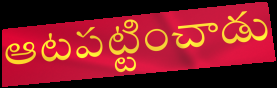
ఆటపట్టించాడు